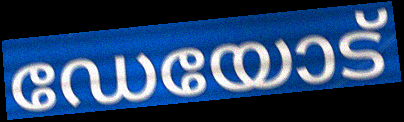
ഡേയോട്